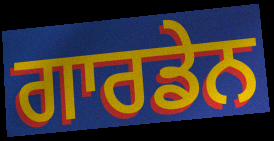
ਗਾਰਡੇਨ